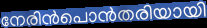
നേരിൻപൊൻതരിയായി